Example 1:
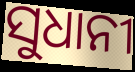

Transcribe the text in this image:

ସୁଧାନୀ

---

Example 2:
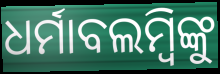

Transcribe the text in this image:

ଧର୍ମାବଲମ୍ବିଙ୍କୁ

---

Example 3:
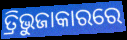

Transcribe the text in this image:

ତ୍ରିଭୁଜାକାରରେ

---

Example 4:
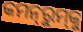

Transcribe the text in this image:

କମନ୍‍ରୁମ୍‍କୁ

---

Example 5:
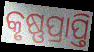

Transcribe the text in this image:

କୃଷ୍ଣପ୍ରାପ୍ତି